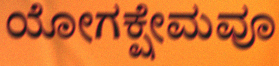
ಯೋಗಕ್ಷೇಮವೂ